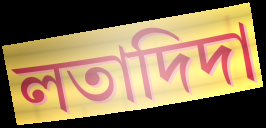
লতাদিদা